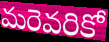
మరెవరికో